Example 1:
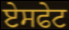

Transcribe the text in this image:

ਏਸਫੇਟ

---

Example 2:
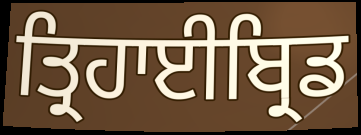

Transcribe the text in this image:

ਤ੍ਰਿਹਾਈਬ੍ਰਿਡ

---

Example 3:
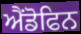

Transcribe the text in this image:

ਐਂਡੋਫਿਨ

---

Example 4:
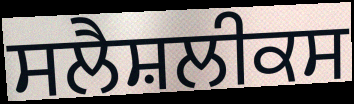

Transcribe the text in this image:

ਸਲੈਸ਼ਲੀਕਸ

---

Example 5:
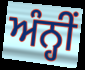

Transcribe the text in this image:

ਅੰਨ੍ਹੀਂ